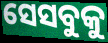
ସେସବୁକୁ